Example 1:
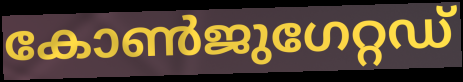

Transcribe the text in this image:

കോൺജുഗേറ്റഡ്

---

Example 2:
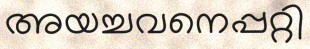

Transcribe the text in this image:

അയച്ചവനെപ്പറ്റി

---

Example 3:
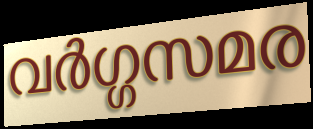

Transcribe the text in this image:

വർഗ്ഗസമര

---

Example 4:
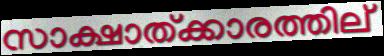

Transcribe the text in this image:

സാക്ഷാത്ക്കാരത്തില്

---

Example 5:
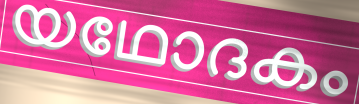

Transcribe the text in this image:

യഥോദകം